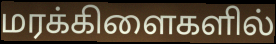
மரக்கிளைகளில்